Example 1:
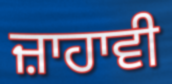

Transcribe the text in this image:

ਜ਼ਾਹਾਵੀ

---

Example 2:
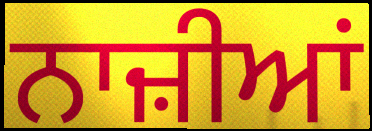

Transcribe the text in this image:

ਨਾਜ਼ੀਆਂ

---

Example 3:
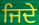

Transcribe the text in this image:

ਜਿਦੇ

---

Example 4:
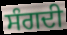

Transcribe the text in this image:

ਸੰਗਦੀ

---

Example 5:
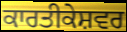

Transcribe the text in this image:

ਕਾਰਤੀਕੇਸ਼ਵਰ